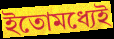
ইতোমধ্যেই